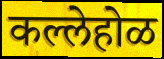
कल्लेहोळ